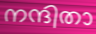
നന്ദിതാ